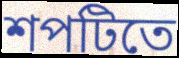
শপটিতে